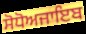
ਸੋਧੋਅਜਾਇਬ